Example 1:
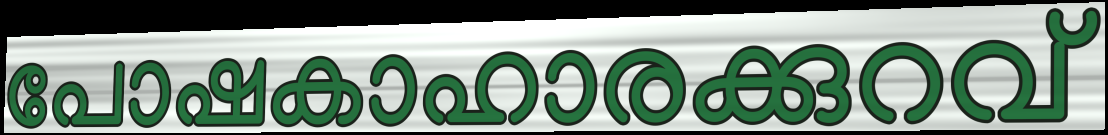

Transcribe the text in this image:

പോഷകാഹാരക്കുറവ്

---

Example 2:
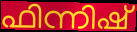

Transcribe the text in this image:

ഫിന്നിഷ്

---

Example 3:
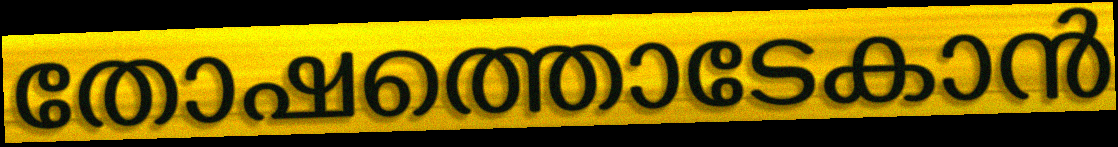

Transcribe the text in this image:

തോഷത്തൊടേകാൻ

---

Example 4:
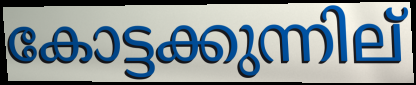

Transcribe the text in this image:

കോട്ടക്കുന്നില്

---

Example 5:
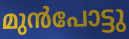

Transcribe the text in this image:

മുൻപോട്ടു